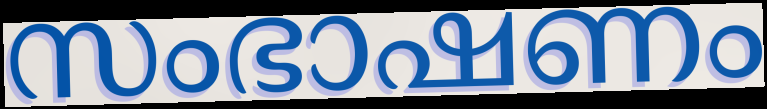
സംഭാഷണം